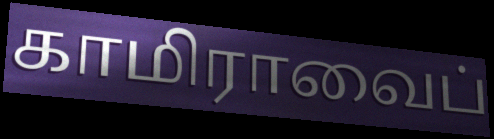
காமிராவைப்